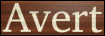
Avert